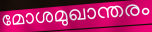
മോശമുഖാന്തരം